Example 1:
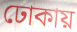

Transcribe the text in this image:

ঢোকায়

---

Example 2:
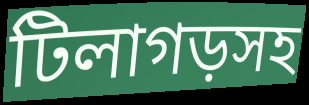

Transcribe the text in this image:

টিলাগড়সহ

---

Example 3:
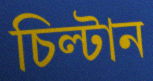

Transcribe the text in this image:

চিল্টান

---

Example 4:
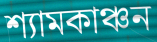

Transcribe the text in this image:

শ্যামকাঞ্চন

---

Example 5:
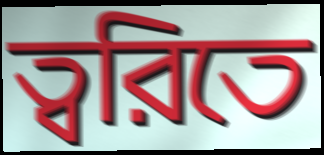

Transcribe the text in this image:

ত্বরিতে